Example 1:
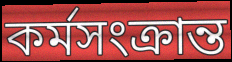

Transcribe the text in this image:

কর্মসংক্রান্ত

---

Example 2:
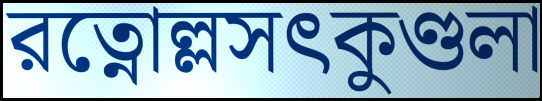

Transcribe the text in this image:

রত্নোল্লসৎকুণ্ডলা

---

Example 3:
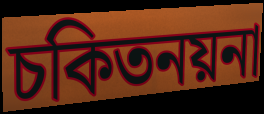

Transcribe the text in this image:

চকিতনয়না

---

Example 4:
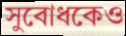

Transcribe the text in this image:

সুবোধকেও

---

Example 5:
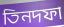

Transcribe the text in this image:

তিনদফা